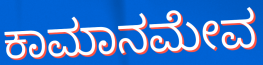
ಕಾಮಾನಮೇವ